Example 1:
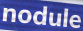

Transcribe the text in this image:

nodule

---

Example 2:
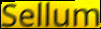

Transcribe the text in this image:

Sellum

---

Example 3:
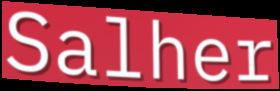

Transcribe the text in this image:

Salher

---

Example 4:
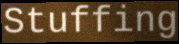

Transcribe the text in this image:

Stuffing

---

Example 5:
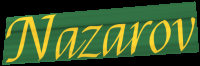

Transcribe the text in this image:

Nazarov